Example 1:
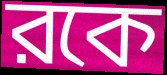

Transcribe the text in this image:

রকে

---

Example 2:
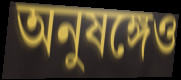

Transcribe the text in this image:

অনুষঙ্গেও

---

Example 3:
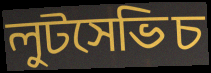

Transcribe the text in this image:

লুটসেভিচ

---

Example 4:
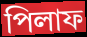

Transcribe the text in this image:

পিলাফ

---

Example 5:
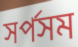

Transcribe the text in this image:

সর্পসম